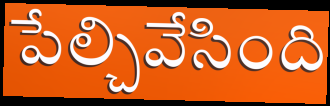
పేల్చివేసింది